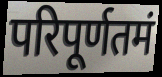
परिपूर्णतमं